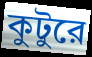
কুটুরে